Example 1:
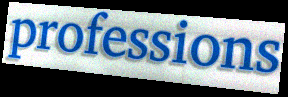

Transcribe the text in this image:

professions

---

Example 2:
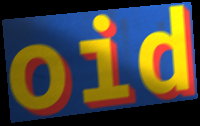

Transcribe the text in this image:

oid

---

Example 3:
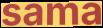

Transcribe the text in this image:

sama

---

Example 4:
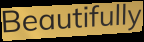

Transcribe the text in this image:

Beautifully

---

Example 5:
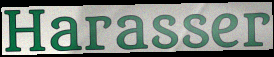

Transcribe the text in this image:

Harasser